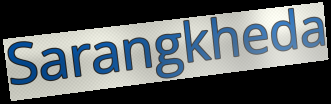
Sarangkheda